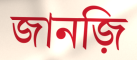
জানজ়ি